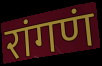
रांगणं